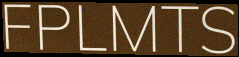
FPLMTS